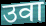
उवा